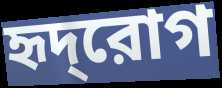
হৃদ্‌রোগ